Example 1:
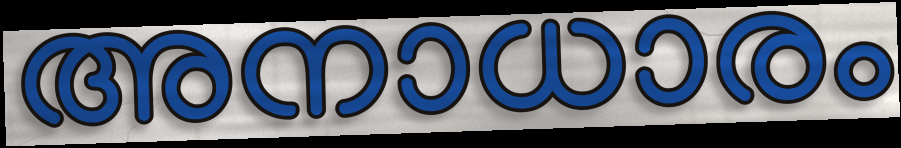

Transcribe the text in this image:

അനാധാരം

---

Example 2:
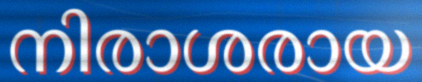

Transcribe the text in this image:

നിരാശരായ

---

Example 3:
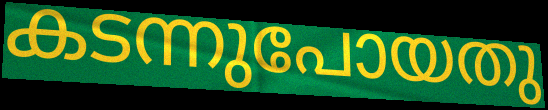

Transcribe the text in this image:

കടന്നുപോയതു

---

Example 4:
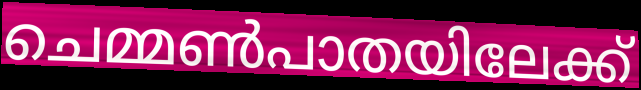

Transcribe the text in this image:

ചെമ്മൺപാതയിലേക്ക്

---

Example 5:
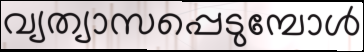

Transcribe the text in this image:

വ്യത്യാസപ്പെടുമ്പോൾ